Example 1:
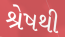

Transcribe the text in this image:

શ્રેષથી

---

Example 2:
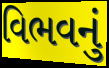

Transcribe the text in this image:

વિભવનું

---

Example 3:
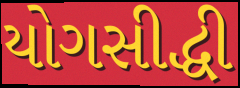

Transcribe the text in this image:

યોગસીદ્ધી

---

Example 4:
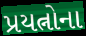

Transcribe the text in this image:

પ્રયત્નોના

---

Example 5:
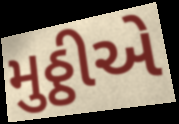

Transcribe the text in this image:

મુઠ્ઠીએ